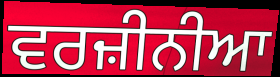
ਵਰਜ਼ੀਨੀਆ